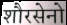
शौरसेनो